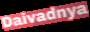
Daivadnya